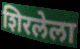
शिरलेला